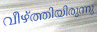
വീഴ്ത്തിയിരുന്നു